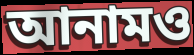
আনামও